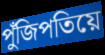
পুঁজিপতিয়ে